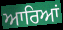
ਆਰਿਆਂ